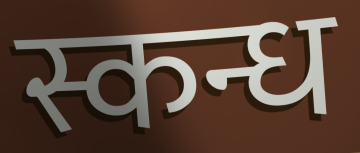
स्कन्ध